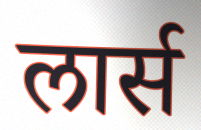
लार्स